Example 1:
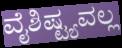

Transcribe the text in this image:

ವೈಶಿಷ್ಟ್ಯವಲ್ಲ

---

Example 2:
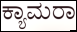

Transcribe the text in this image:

ಕ್ಯಾಮರಾ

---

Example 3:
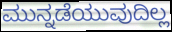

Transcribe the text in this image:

ಮುನ್ನಡೆಯುವುದಿಲ್ಲ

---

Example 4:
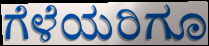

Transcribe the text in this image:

ಗೆಳೆಯರಿಗೂ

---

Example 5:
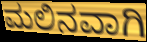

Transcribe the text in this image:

ಮಲಿನವಾಗಿ